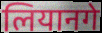
लियानगे